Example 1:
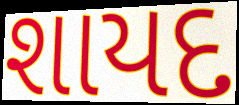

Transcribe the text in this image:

શાયદ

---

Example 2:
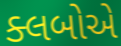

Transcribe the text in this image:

ક્લબોએ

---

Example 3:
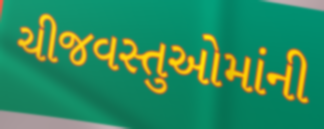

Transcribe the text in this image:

ચીજવસ્તુઓમાંની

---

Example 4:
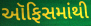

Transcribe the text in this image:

ઑફિસમાંથી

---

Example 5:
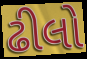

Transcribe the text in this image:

ઢીલો